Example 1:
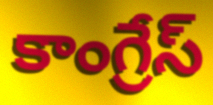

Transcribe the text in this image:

కాంగ్రేస్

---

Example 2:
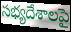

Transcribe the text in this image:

సభ్యదేశాలపై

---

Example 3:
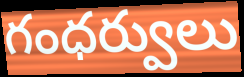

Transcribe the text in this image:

గంధర్వులు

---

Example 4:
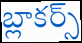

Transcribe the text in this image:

బ్లాకర్స్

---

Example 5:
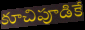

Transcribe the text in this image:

కూచిపూడికే